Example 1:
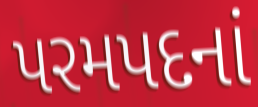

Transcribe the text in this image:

પરમપદનાં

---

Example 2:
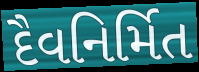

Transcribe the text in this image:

દૈવનિર્મિત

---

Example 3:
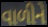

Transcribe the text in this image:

વાળીને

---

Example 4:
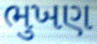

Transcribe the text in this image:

ભુખણ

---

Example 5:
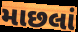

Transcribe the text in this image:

માછલાં